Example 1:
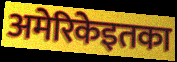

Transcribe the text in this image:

अमेरिकेइतका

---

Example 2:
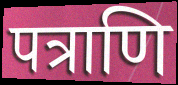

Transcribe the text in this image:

पत्राणि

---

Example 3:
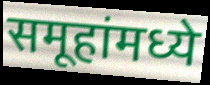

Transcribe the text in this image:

समूहांमध्ये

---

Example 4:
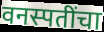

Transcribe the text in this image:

वनस्पतींचा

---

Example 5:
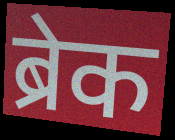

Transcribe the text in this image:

ब्रेक